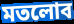
মতলোব